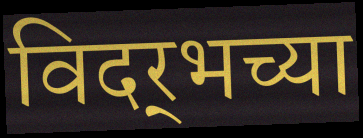
विदर्भच्या